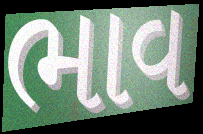
ભાવ